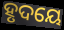
ହୃଦୟେ